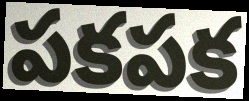
పకపక